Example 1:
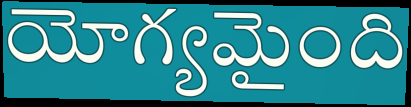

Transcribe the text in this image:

యోగ్యమైంది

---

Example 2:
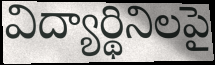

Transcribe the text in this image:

విద్యార్థినిలపై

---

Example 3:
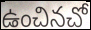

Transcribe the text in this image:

ఉంచినచో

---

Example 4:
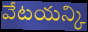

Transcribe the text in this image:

వేటయన్కి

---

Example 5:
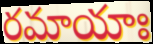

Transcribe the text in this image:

రమాయాః